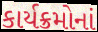
કાર્યક્રમોનાં